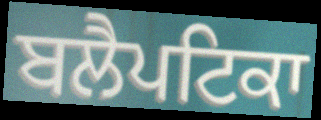
ਬਲੈਪਟਿਕਾ